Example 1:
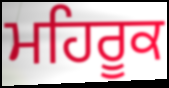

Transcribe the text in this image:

ਮਹਿਰੂਕ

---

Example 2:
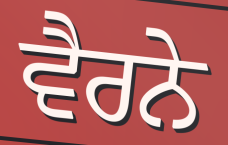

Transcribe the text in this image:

ਵੈਰਨੇ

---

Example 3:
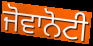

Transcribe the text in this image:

ਜੋਵਾਨੋਟੀ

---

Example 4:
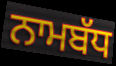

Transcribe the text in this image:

ਨਾਮਬੱਧ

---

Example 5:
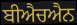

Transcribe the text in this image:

ਬੀਐਚਐਨ